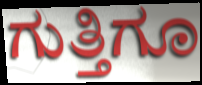
ಗುತ್ತಿಗೂ